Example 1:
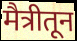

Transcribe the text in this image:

मैत्रीतून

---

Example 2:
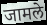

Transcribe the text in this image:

जामले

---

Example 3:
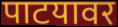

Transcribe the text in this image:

पाटयावर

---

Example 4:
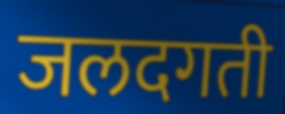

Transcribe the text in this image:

जलदगती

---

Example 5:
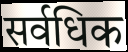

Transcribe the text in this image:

सर्वधिक